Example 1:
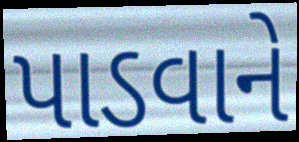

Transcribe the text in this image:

પાડવાને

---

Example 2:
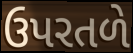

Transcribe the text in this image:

ઉપરતળે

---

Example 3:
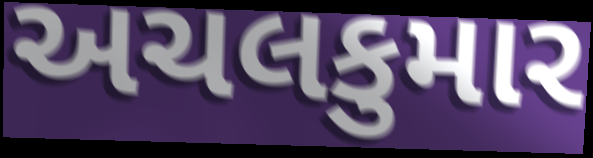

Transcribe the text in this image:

અચલકુમાર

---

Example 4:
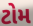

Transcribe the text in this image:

ટોમ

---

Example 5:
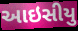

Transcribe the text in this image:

આઇસીયુ